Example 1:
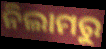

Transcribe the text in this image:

ନିଲାମରୁ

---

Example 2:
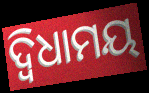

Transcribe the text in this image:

ଦ୍ୱିଧାମୟ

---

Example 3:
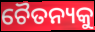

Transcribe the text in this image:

ଚୈତନ୍ୟକୁ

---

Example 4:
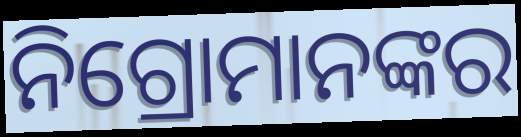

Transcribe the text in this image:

ନିଗ୍ରୋମାନଙ୍କର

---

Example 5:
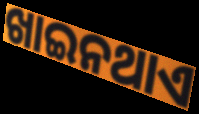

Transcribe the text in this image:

ଖାଇନଥାଏ